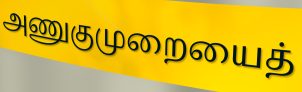
அணுகுமுறையைத்